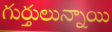
గుర్తులున్నాయి